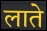
लाते